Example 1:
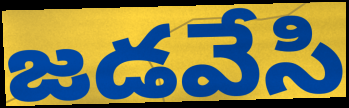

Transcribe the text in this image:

జడవేసి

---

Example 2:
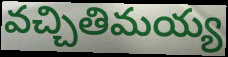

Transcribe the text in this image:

వచ్చితిమయ్య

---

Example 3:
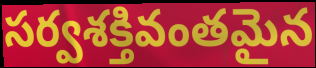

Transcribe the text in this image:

సర్వశక్తివంతమైన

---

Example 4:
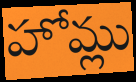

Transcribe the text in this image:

హోమ్లు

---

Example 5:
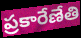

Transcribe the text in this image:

ప్రకారేణేతి